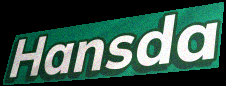
Hansda